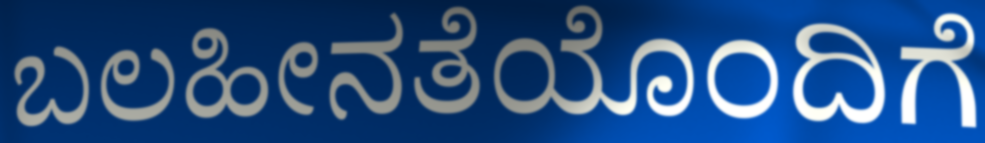
ಬಲಹೀನತೆಯೊಂದಿಗೆ